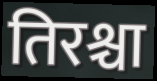
तिरश्चा